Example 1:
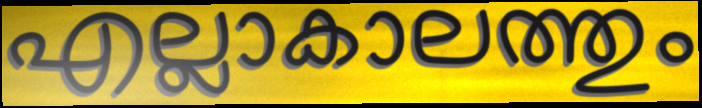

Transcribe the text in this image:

എല്ലാകാലത്തും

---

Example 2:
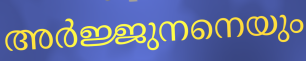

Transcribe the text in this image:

അർജ്ജുനനെയും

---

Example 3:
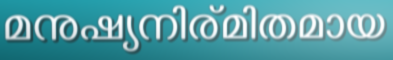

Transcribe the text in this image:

മനുഷ്യനിര്മിതമായ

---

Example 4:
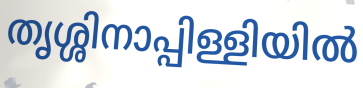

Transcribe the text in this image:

തൃശ്ശിനാപ്പിള്ളിയിൽ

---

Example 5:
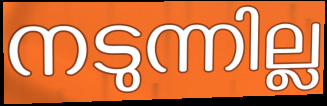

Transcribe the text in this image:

നടുന്നില്ല